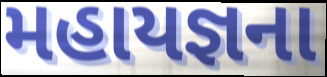
મહાયજ્ઞના